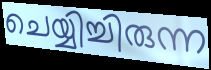
ചെയ്യിച്ചിരുന്ന